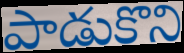
పాడుకొని